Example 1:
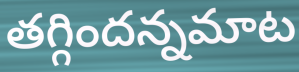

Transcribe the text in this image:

తగ్గిందన్నమాట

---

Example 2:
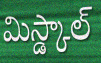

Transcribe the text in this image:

మిస్డ్కాల్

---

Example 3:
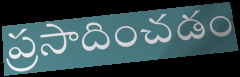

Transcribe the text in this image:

ప్రసాదించడం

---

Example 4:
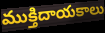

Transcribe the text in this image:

ముక్తిదాయకాలు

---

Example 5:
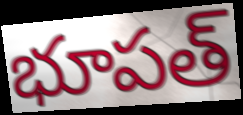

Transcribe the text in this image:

భూపత్